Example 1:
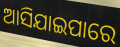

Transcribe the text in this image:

ଆସିଯାଇପାରେ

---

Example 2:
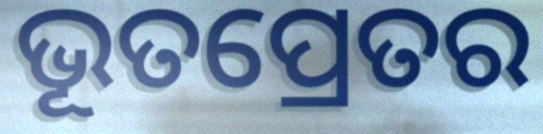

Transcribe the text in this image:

ଭୂତପ୍ରେତର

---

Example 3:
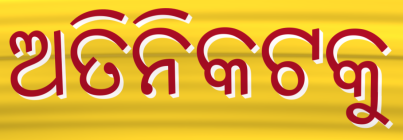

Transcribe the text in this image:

ଅତିନିକଟକୁ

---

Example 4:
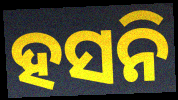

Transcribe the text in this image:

ହସନି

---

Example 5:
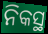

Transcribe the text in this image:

ନିକସ୍ଥ